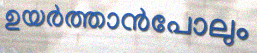
ഉയർത്താൻപോലും